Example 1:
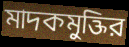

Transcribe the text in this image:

মাদকমুক্তির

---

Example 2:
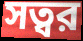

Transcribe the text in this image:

সত্বর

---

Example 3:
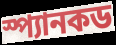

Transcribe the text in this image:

স্প্যানকড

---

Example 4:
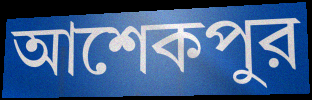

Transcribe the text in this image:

আশেকপুর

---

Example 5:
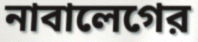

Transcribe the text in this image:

নাবালেগের